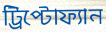
ট্রিপ্টোফ্যান